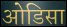
ओडिसा